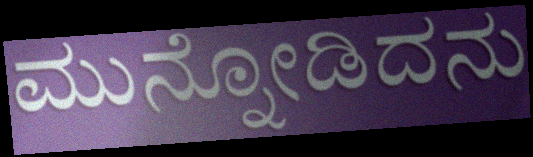
ಮುನ್ನೋಡಿದನು